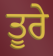
ਤੂਰੇ